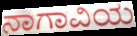
ನಾಗಾವಿಯ